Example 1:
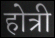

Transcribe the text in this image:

होत्री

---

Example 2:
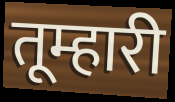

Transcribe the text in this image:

तूम्हारी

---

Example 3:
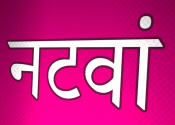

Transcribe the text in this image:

नटवां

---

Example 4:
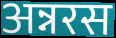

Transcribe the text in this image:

अन्नरस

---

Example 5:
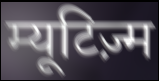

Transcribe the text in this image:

म्यूटिज़्म